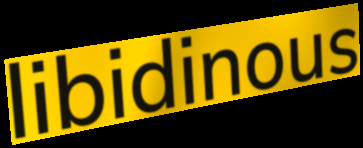
libidinous